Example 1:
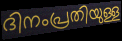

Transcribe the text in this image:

ദിനംപ്രതിയുള്ള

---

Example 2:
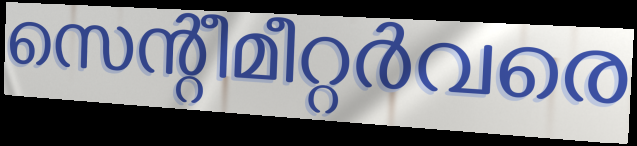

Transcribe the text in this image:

സെന്റീമീറ്റർവരെ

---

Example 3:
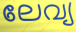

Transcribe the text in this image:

ലേവ്യ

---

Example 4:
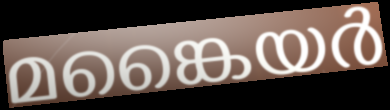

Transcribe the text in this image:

മങ്കൈയർ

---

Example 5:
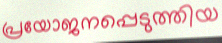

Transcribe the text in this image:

പ്രയോജനപ്പെടുത്തിയ